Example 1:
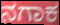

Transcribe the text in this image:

ನಗಾಕ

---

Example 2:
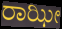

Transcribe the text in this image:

ರಾಝೀ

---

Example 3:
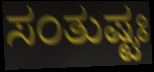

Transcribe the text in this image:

ಸಂತುಷ್ಟಃ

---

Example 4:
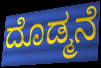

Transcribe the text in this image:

ದೊಡ್ಮನೆ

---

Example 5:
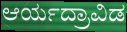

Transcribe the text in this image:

ಆರ್ಯದ್ರಾವಿಡ